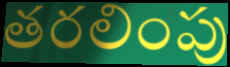
తరలింపు